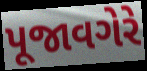
પૂજાવગેરે